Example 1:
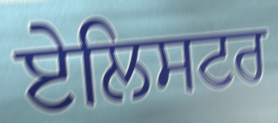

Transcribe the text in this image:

ਏਲਿਸਟਰ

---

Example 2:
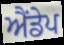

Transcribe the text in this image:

ਐਂਡੇਪ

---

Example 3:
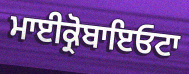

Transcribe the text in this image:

ਮਾਈਕ੍ਰੋਬਾਇਓਟਾ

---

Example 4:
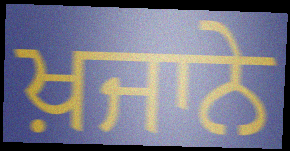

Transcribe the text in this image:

ਖ਼ਜਾਨੇ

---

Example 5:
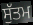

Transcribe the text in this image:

ਸੁੱਤਮ